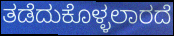
ತಡೆದುಕೊಳ್ಳಲಾರದೆ